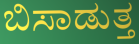
ಬಿಸಾಡುತ್ತ